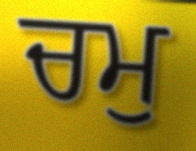
ਚਮੁ